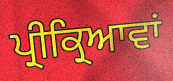
ਪ੍ਰੀਕ੍ਰਿਆਵਾਂ